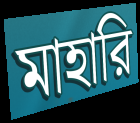
মাহারি